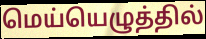
மெய்யெழுத்தில்